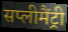
सप्लीमैंट्री